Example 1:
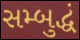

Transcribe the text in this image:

સમ્બુદ્ધં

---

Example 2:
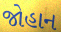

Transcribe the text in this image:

જોહાન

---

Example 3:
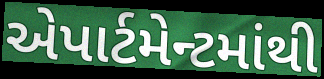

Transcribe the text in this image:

એપાર્ટમેન્ટમાંથી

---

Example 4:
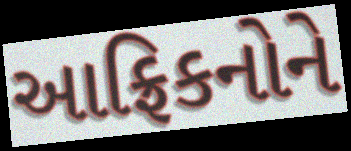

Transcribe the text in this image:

આફ્રિકનોને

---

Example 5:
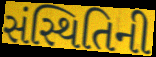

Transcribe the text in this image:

સંસ્થિતિની